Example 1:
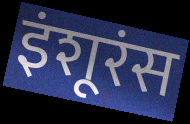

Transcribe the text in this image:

इंशूरंस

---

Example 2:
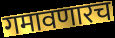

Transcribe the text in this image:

गमावणारच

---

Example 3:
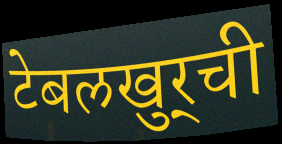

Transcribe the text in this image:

टेबलखुर्ची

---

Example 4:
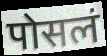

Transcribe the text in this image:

पोसलं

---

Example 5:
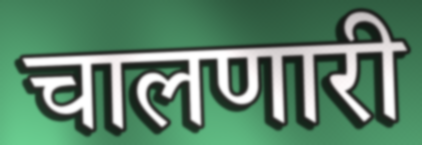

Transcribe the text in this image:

चालणारी